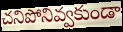
చనిపోనివ్వకుండా